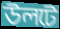
উলটে